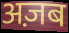
अज़ब